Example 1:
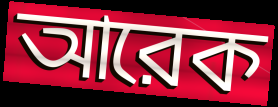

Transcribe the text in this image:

আরেক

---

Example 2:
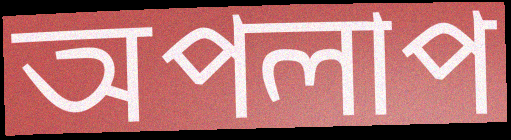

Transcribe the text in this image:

অপলাপ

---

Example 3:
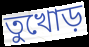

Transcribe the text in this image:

তুখোড়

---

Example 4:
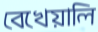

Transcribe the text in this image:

বেখেয়ালি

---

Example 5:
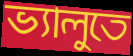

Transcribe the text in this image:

ভ্যালুতে